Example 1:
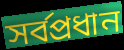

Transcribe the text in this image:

সৰ্বপ্ৰধান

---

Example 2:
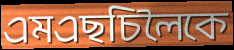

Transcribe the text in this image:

এমএছচিলৈকে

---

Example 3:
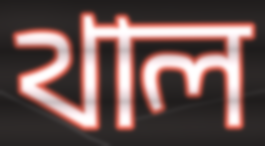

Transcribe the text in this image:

থাল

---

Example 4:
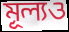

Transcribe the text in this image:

মূল্যও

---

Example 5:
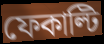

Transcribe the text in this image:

ফেকাল্টি